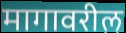
मागावरील